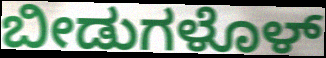
ಬೀಡುಗಳೊಳ್